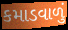
કમાડવાળું